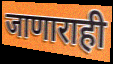
जाणाराही